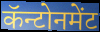
कॅन्टोनमेंट